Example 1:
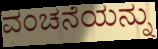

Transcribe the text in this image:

ವಂಚನೆಯನ್ನು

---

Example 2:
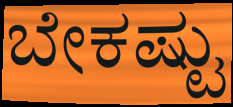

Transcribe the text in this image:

ಬೇಕಷ್ಟು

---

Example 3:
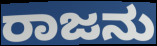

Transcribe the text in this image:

ರಾಜನು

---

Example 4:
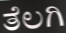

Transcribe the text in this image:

ತೆಲಗಿ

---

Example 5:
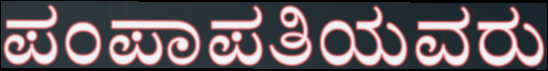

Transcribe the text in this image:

ಪಂಪಾಪತಿಯವರು